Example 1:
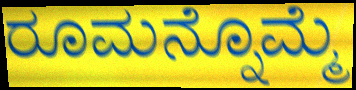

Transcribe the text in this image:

ರೂಮನ್ನೊಮ್ಮೆ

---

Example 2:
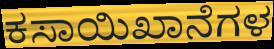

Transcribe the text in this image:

ಕಸಾಯಿಖಾನೆಗಳ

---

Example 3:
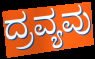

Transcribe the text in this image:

ದ್ರವ್ಯವು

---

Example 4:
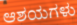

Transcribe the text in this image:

ಆಶಯಗಳು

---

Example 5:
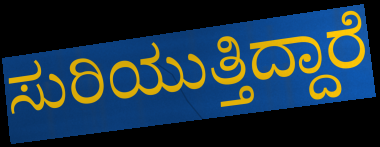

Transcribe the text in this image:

ಸುರಿಯುತ್ತಿದ್ದಾರೆ